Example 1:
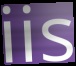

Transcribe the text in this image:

iis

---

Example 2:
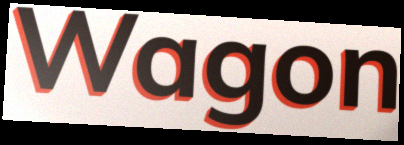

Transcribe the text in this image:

Wagon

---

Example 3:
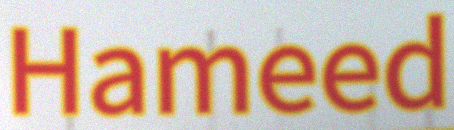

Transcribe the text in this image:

Hameed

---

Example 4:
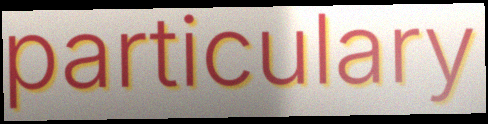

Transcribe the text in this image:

particulary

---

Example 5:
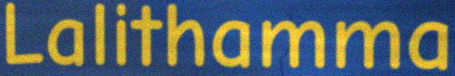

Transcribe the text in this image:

Lalithamma